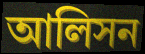
আলিসন